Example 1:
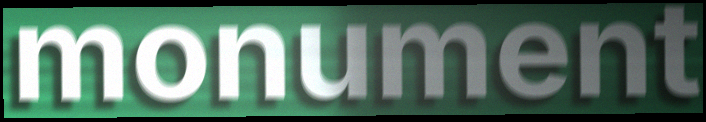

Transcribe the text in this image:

monument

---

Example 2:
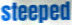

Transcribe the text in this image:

steeped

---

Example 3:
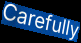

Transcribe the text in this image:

Carefully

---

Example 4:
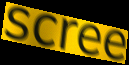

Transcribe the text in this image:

scree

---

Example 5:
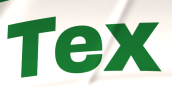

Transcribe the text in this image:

Tex